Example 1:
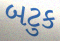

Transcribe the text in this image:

બટુક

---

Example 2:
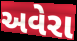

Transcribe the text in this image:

અવેરા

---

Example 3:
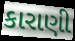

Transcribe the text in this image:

કારાણી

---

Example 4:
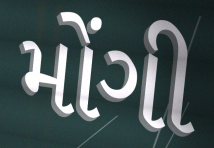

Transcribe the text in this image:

મોંગી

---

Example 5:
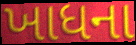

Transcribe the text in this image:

ખાધના